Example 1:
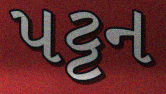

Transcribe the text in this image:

પટ્ટન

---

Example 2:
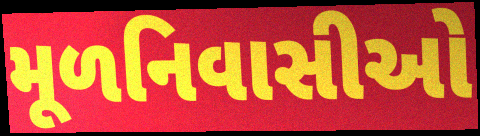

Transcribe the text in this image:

મૂળનિવાસીઓ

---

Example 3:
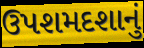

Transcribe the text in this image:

ઉપશમદશાનું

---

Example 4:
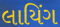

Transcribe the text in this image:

લાયિંગ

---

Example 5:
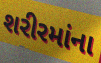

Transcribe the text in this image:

શરીરમાંના